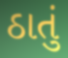
ઠાતું